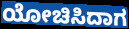
ಯೋಚಿಸಿದಾಗ